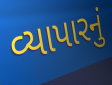
વ્યાપારનું